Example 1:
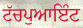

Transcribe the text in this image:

ਟੱਚਪੁਆਇੰਟ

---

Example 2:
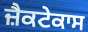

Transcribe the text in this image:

ਜ਼ੈਕਟੇਕਾਸ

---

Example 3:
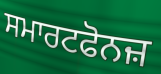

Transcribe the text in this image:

ਸਮਾਰਟਫੋਨਜ਼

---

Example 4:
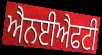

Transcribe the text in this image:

ਐਨਈਐਫਟੀ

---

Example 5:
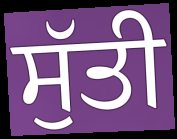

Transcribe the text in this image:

ਸੁੱਤੀ